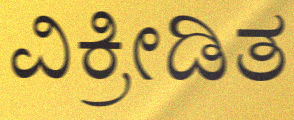
ವಿಕ್ರೀಡಿತ